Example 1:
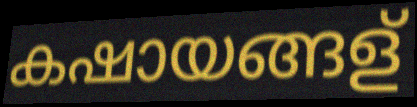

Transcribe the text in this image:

കഷായങ്ങള്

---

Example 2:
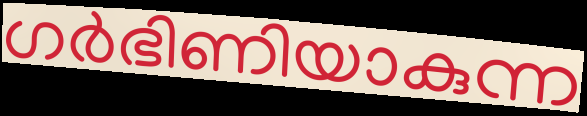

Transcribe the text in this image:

ഗർഭിണിയാകുന്ന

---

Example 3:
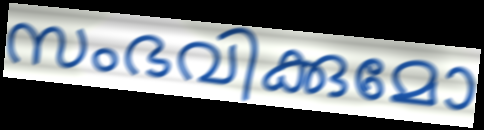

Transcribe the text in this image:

സംഭവിക്കുമോ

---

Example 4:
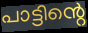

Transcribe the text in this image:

പാട്ടിന്റെ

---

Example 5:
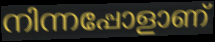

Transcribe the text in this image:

നിന്നപ്പോളാണ്